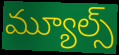
మ్యూల్స్